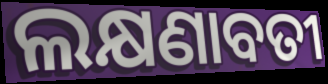
ଲକ୍ଷଣାବତୀ